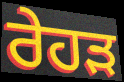
ਰੇਹੜ